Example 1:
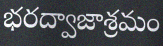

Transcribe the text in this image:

భరద్వాజాశ్రమం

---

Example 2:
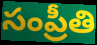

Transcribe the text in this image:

సంప్రీతి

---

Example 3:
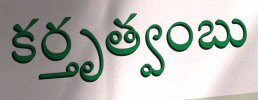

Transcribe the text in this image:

కర్తృత్వంబు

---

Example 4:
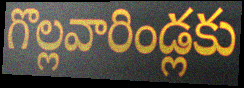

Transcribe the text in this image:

గొల్లవారిండ్లకు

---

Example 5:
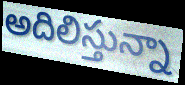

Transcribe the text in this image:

అదిలిస్తున్నా